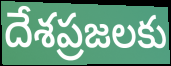
దేశప్రజలకు